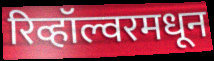
रिव्हॉल्वरमधून